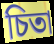
চিতা